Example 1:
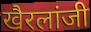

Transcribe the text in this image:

खैरलांजी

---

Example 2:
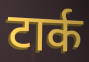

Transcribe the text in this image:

टार्क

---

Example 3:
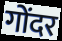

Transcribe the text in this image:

गोंदर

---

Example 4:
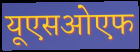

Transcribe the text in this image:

यूएसओएफ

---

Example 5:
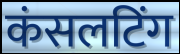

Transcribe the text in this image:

कंसलटिंग